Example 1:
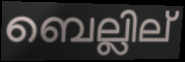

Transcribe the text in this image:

ബെല്ലില്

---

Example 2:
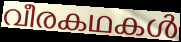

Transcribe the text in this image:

വീരകഥകൾ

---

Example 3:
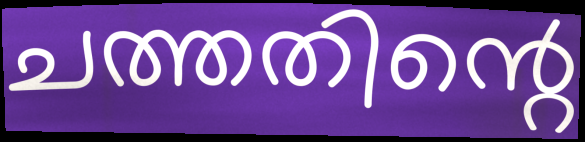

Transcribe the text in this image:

ചത്തതിന്റെ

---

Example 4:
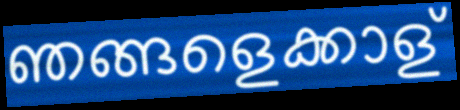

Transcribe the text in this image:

ഞങ്ങളെക്കാള്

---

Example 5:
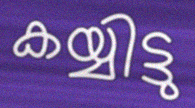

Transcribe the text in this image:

കയ്യിട്ടു